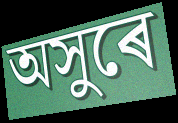
অসুৰে